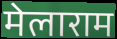
मेलाराम